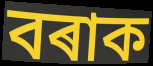
বৰাক